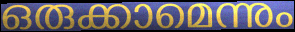
ഒരുക്കാമെന്നും